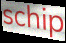
schip